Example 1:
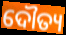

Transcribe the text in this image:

ଦୌତ୍ୟ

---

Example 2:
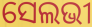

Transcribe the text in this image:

ସେଲଭୀ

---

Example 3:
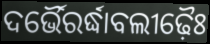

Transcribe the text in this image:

ଦର୍ଭୈରର୍ଦ୍ଧାବଲୀଢ଼ୈଃ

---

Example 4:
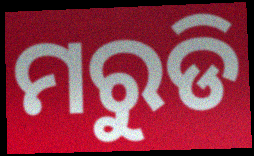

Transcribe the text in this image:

ମରୁଡି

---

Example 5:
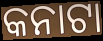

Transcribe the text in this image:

କନାଟା